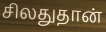
சிலதுதான்